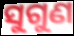
ସୁଗୁଣ